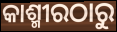
କାଶ୍ମୀରଠାରୁ